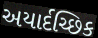
અયાર્દચ્છિક